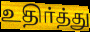
உதிர்த்து